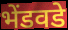
भेंडवडे